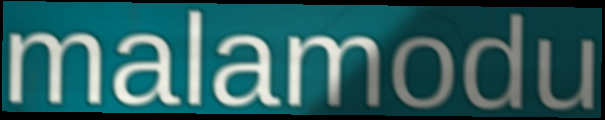
malamodu